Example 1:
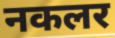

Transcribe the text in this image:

नकलर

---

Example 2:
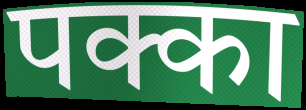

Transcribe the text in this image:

पक्का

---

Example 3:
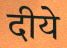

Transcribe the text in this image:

दीये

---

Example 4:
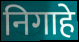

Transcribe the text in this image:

निगाहे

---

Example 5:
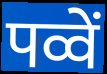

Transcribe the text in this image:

पव्वें